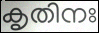
കൃതിനഃ